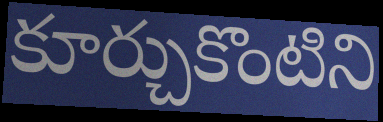
కూర్చుకొంటిని